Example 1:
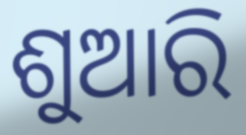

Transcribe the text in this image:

ଶୁଆରି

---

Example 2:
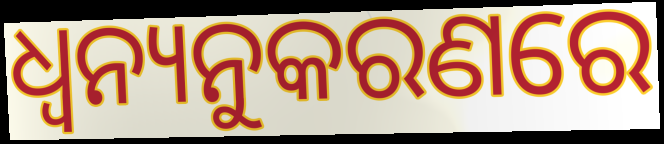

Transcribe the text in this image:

ଧ୍ଵନ୍ୟନୁକରଣରେ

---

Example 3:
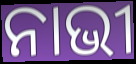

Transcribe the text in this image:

ନାଭୀ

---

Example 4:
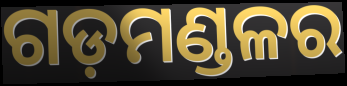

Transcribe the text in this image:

ଗଡ଼ମଣ୍ଡଳର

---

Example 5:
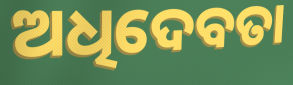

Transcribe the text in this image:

ଅଧିଦେବତା